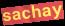
sachay